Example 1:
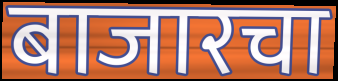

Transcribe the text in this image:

बाजारचा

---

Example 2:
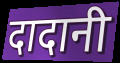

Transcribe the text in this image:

दादानी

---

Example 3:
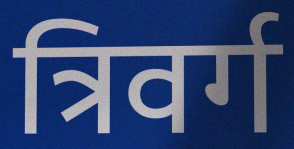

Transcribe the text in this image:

त्रिवर्ग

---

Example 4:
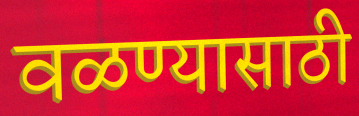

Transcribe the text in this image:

वळण्यासाठी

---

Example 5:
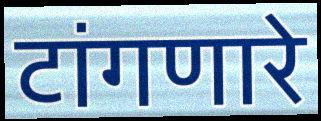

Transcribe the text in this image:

टांगणारे